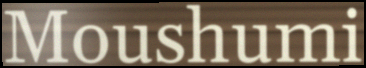
Moushumi